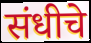
संधीचे